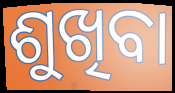
ଶୁଖିବା